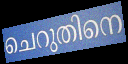
ചെറുതിനെ